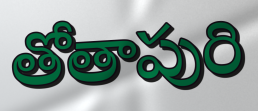
తోతాపురి